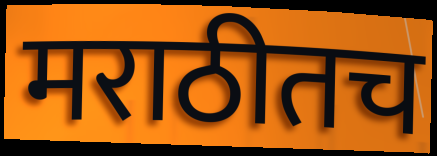
मराठीतच